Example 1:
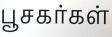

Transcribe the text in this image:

பூசகர்கள்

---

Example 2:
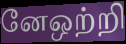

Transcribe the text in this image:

னேஒற்றி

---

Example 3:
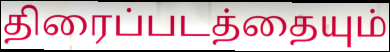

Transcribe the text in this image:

திரைப்படத்தையும்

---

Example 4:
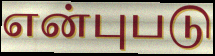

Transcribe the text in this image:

என்புபடு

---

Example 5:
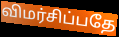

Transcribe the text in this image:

விமர்சிப்பதே